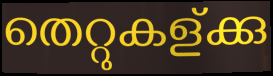
തെറ്റുകള്ക്കു